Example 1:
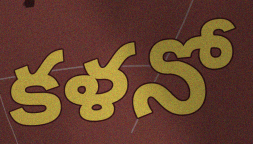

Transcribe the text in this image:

కళనో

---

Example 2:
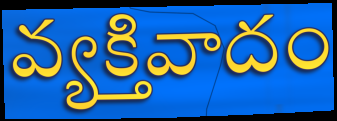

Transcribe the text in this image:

వ్యక్తివాదం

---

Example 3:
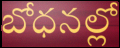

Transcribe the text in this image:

బోధనల్లో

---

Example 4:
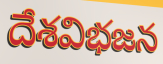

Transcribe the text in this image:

దేశవిభజన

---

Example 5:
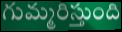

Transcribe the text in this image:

గుమ్మరిస్తుంది